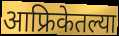
आफ्रिकेतल्या